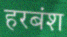
हरबंश